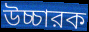
উচ্চারক